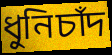
ধুনিচাঁদ